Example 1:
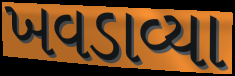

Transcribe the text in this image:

ખવડાવ્યા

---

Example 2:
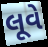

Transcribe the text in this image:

લૂવે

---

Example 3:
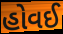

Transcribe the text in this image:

હોવઈ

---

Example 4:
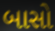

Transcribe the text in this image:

બાસો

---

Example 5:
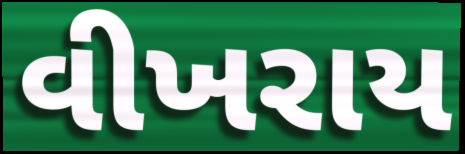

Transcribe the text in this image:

વીખરાય